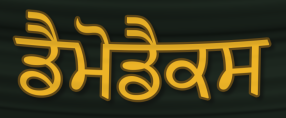
ਡੈਮੋਡੈਕਸ